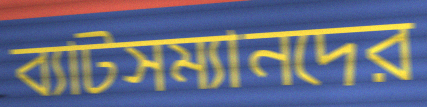
ব্যাটসম্যানদের